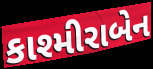
કાશ્મીરાબેન